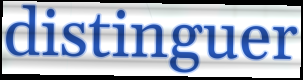
distinguer